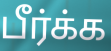
பீர்க்க